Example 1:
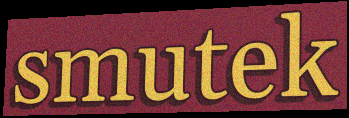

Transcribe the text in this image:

smutek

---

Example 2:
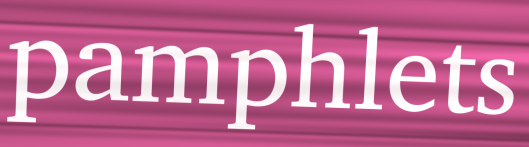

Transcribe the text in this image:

pamphlets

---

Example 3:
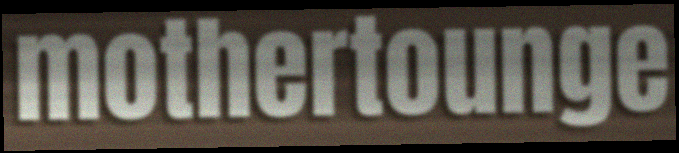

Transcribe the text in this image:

mothertounge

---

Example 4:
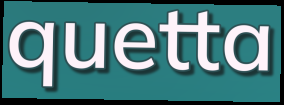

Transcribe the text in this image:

quetta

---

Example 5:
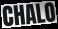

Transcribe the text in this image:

CHALO